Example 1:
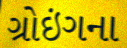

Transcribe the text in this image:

ગ્રોઇંગના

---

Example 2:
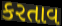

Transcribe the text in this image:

કરતાવ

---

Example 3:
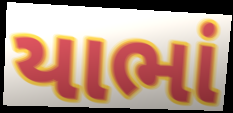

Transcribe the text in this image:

યાભાં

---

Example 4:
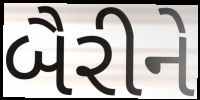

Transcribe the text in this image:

બૈરીને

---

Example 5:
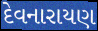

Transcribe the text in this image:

દેવનારાયણ